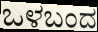
ಒಳಬಂದ